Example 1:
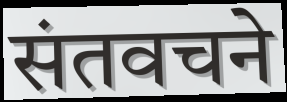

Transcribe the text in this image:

संतवचने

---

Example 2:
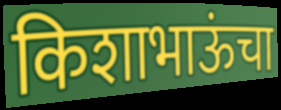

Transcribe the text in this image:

किशाभाऊंचा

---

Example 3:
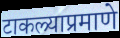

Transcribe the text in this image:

टाकल्याप्रमाणे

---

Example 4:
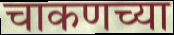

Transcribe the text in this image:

चाकणच्या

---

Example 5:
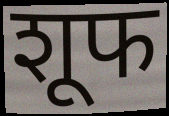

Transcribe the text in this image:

शूफ